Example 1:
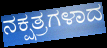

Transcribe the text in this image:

ನಕ್ಷತ್ರಗಳಾದ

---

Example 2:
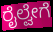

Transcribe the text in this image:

ರೈಲ್ವೇಗೆ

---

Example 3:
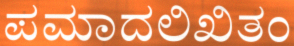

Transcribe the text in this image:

ಪಮಾದಲಿಖಿತಂ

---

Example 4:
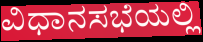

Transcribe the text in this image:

ವಿಧಾನಸಭೆಯಲ್ಲಿ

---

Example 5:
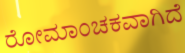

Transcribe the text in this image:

ರೋಮಾಂಚಕವಾಗಿದೆ